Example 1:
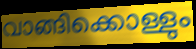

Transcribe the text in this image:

വാങ്ങിക്കൊള്ളും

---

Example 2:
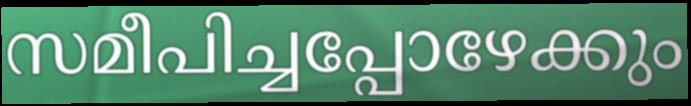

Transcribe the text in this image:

സമീപിച്ചപ്പോഴേക്കും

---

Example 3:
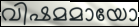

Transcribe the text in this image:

വിഷമമായോ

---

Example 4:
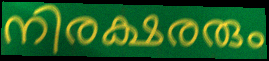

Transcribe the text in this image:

നിരക്ഷരരും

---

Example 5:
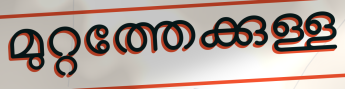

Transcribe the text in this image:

മുറ്റത്തേക്കുള്ള